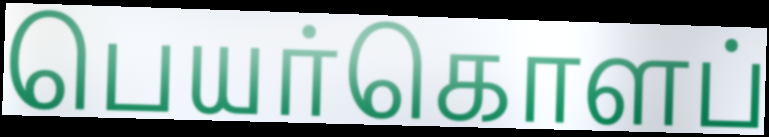
பெயர்கொளப்